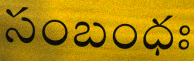
సంబంధః